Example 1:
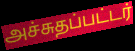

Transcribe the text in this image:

அச்சுதப்பட்டர்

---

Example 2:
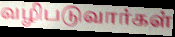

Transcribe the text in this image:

வழிபடுவார்கள்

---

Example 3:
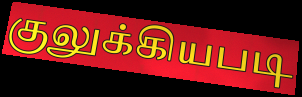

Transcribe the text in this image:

குலுக்கியபடி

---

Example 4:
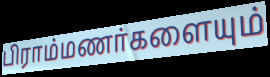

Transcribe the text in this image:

பிராம்மணர்களையும்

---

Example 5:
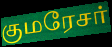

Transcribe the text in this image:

குமரேசர்